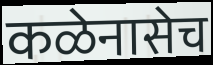
कळेनासेच